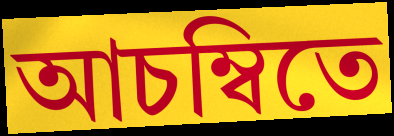
আচম্বিতে